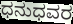
ಧನುಧವರ